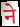
ने